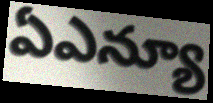
ఏఎన్యూ